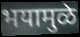
भयामुळे